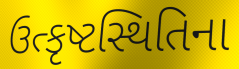
ઉત્કૃષ્ટસ્થિતિના